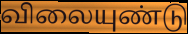
விலையுண்டு